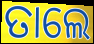
ତାଲେ